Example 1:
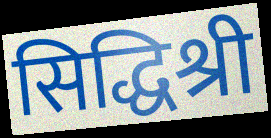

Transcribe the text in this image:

सिद्धिश्री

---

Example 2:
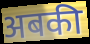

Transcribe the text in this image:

अबकी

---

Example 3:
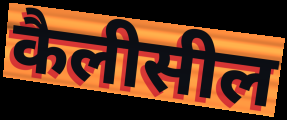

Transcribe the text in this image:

कैलीसील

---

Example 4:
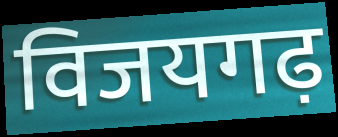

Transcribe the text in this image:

विजयगढ़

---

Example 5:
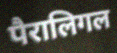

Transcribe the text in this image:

पैरालिगल